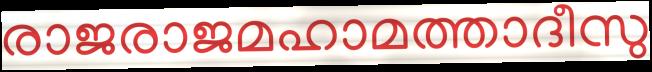
രാജരാജമഹാമത്താദീസു